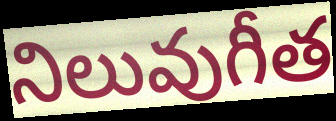
నిలువుగీత